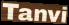
Tanvi